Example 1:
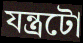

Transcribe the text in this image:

যন্ত্ৰটো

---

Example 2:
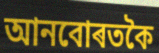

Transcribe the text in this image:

আনবোৰতকৈ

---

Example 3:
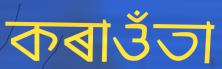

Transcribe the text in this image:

কৰাওঁতা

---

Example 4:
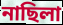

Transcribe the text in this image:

নাছিলা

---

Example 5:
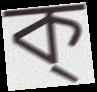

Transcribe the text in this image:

ক্